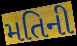
મતિની